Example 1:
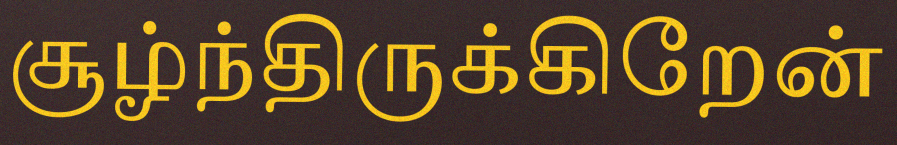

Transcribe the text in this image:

சூழ்ந்திருக்கிறேன்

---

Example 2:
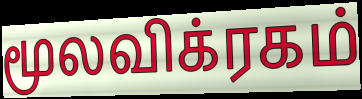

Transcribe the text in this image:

மூலவிக்ரகம்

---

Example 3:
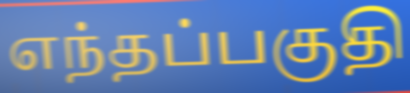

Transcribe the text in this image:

எந்தப்பகுதி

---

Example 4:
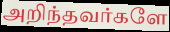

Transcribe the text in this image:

அறிந்தவர்களே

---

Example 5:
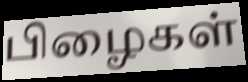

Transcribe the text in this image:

பிழைகள்